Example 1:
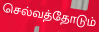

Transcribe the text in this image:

செல்வத்தோடும்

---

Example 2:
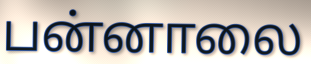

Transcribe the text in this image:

பன்னாலை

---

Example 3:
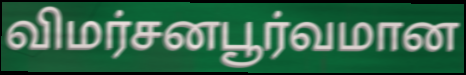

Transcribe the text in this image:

விமர்சனபூர்வமான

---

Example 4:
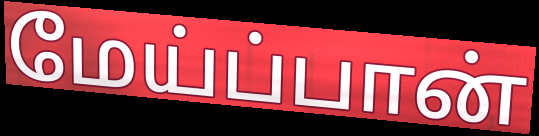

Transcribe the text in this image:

மேய்ப்பான்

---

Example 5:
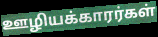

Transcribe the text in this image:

ஊழியக்காரர்கள்